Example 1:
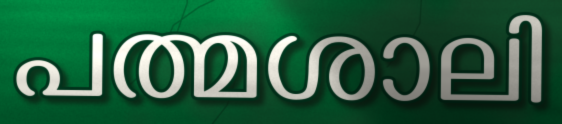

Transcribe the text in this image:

പത്മശാലി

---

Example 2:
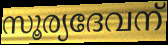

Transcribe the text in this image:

സൂര്യദേവന്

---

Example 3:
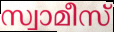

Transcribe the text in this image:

സ്വാമീസ്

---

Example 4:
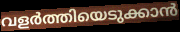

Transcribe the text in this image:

വളർത്തിയെടുക്കാൻ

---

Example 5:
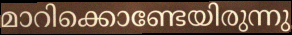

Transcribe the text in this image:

മാറിക്കൊണ്ടേയിരുന്നു